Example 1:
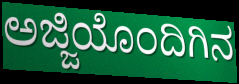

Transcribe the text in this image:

ಅಜ್ಜಿಯೊಂದಿಗಿನ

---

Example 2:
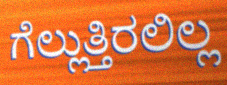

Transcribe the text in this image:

ಗೆಲ್ಲುತ್ತಿರಲಿಲ್ಲ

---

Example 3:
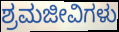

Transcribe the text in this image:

ಶ್ರಮಜೀವಿಗಳು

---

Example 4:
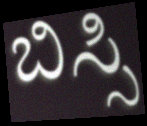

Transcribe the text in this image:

ಬಿಸ್ಸಿ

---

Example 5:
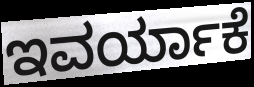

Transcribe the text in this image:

ಇವರ್ಯಾಕೆ